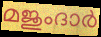
മജുംദാർ